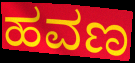
ಹವಣ